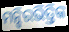
ମନ୍ଦିରଭିତ୍ତିକ